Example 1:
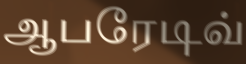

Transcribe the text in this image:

ஆபரேடிவ்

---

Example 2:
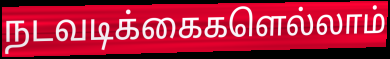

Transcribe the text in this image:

நடவடிக்கைகளெல்லாம்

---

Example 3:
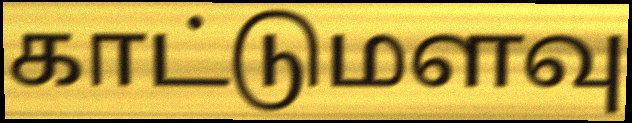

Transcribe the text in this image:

காட்டுமளவு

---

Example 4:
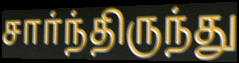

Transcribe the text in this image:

சார்ந்திருந்து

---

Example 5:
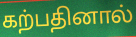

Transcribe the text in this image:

கற்பதினால்